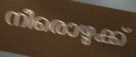
നീരൊഴുക്ക്